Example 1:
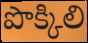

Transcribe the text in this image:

పొక్కిలి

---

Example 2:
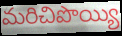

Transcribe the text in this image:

మరిచిపొయ్యి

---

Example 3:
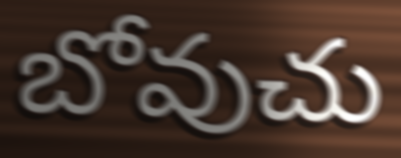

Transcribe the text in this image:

బోవుచు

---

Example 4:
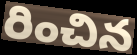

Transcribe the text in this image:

రించిన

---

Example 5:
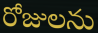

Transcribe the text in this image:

రోజులను